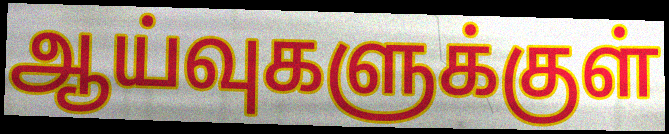
ஆய்வுகளுக்குள்